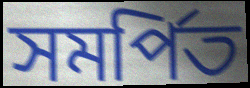
সমর্পিত